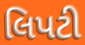
લિપટી